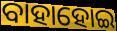
ବାହାହୋଇ